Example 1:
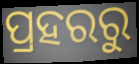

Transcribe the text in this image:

ପ୍ରହରରୁ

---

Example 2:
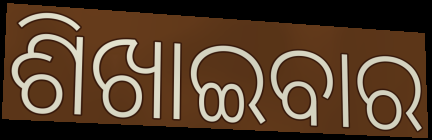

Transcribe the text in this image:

ଶିଖାଇବାର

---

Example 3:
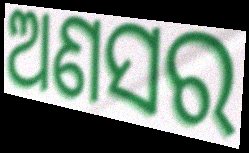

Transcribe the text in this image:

ଅଣସର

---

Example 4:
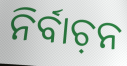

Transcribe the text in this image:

ନିର୍ବାଚ଼ନ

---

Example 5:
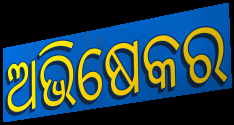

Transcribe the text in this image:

ଅଭିଷେକର